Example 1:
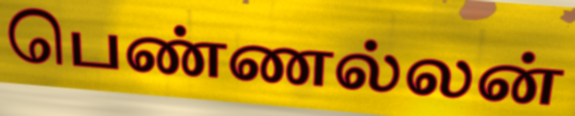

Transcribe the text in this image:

பெண்ணல்லன்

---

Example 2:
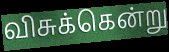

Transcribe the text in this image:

விசுக்கென்று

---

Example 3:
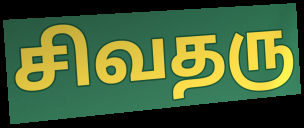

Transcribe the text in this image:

சிவதரு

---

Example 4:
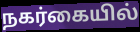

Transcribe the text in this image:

நகர்கையில்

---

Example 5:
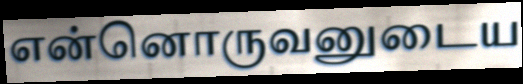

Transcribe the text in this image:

என்னொருவனுடைய